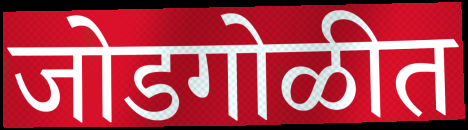
जोडगोळीत